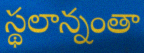
స్థలాన్నంతా